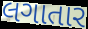
લગાતાર